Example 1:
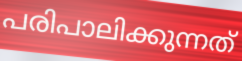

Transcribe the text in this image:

പരിപാലിക്കുന്നത്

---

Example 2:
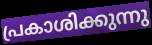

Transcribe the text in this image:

പ്രകാശിക്കുന്നു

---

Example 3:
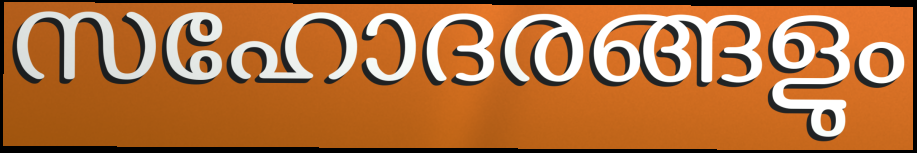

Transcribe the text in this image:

സഹോദരങ്ങളും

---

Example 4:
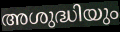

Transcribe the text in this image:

അശുദ്ധിയും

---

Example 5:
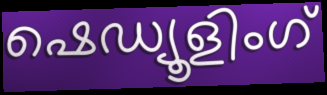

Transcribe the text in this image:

ഷെഡ്യൂളിംഗ്